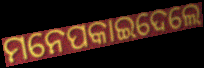
ମନେପକାଇଦେଲେ